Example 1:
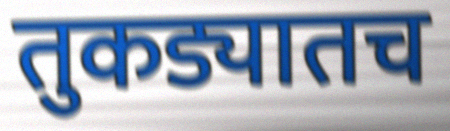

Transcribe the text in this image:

तुकड्यातच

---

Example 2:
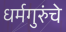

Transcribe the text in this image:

धर्मगुरुंचे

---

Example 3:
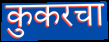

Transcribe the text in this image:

कुकरचा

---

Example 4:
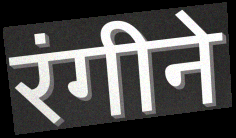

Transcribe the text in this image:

रंगीने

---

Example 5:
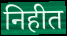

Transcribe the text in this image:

निहीत